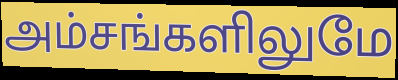
அம்சங்களிலுமே